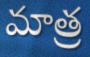
మాత్ర